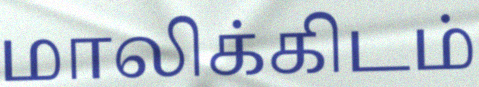
மாலிக்கிடம்